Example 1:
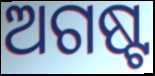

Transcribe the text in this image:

ଅଗଷ୍ଟ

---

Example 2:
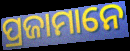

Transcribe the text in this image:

ପ୍ରଜାମାନେ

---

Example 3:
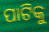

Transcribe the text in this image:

ପାଟିକୁ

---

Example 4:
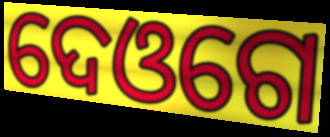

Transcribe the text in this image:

ଦେଓଗେ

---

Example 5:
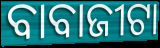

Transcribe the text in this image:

ବାବାଜୀଟା